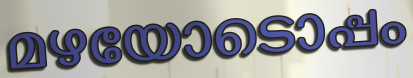
മഴയോടൊപ്പം